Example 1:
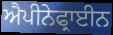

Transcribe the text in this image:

ਐਪੀਨੇਫ੍ਰਾਈਨ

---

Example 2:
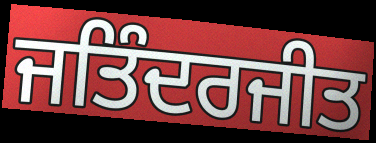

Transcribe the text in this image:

ਜਤਿੰਦਰਜੀਤ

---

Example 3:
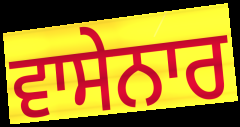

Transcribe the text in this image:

ਵਾਸੇਨਾਰ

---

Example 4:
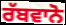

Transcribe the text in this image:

ਰੱਬਵਾਨੋ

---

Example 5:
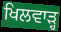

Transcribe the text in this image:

ਖਿਲਵਾੜ੍ਹ